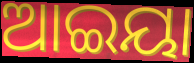
ଆଇୟା